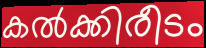
കൽക്കിരീടം